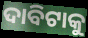
ଦାବିଟାକୁ